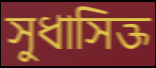
সুধাসিক্ত